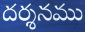
దర్శనము